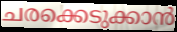
ചരക്കെടുക്കാൻ